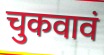
चुकवावं